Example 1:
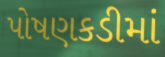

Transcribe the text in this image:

પોષણકડીમાં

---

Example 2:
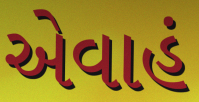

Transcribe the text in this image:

એવાહં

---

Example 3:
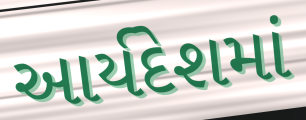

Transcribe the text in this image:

આર્યદેશમાં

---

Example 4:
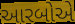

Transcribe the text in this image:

આરબોએ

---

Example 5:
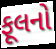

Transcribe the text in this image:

ફૂલનો